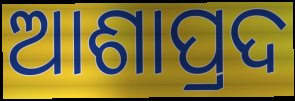
ଆଶାପ୍ରଦ